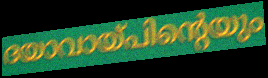
ദയാവായ്പിന്റെയും